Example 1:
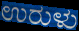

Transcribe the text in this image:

ಉರುಳು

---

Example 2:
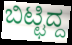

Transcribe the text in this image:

ಬಿಟ್ಟಿದ್ದ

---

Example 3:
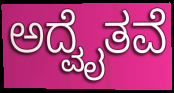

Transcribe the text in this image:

ಅದ್ವೈತವೆ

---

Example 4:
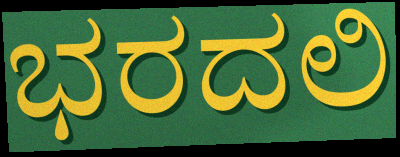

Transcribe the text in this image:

ಭರದಲಿ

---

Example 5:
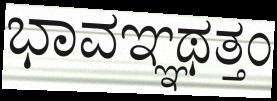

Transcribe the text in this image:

ಭಾವಞ್ಞಥತ್ತಂ